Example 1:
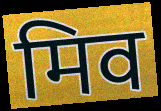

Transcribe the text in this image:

मिव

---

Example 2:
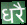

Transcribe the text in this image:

धरै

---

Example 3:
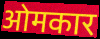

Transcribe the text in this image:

ओमकार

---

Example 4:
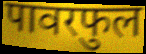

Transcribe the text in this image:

पावरफुल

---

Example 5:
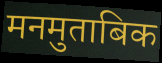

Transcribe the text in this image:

मनमुताबिक